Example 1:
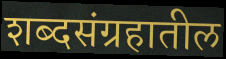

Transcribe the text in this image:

शब्दसंग्रहातील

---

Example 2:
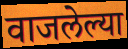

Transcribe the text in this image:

वाजलेल्या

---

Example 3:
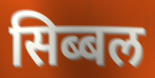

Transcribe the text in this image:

सिब्बल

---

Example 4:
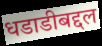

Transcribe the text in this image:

धडाडीबद्दल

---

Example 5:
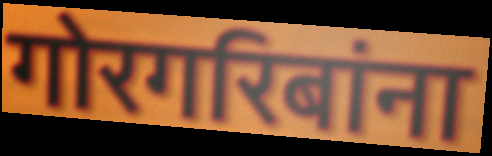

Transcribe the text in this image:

गोरगरिबांना